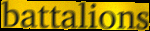
battalions